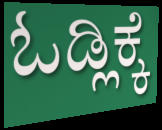
ಓಡ್ಲಿಕ್ಕೆ